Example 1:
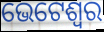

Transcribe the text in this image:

ଭେଟେଶ୍ୱର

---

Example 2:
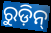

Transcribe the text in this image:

ରୁଡ଼ିନ୍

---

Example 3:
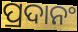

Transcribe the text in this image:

ପ୍ରଦାନଂ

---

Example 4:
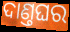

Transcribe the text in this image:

ଦାଣ୍ତଘର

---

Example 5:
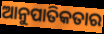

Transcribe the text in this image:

ଆନୁପାତିକତାର